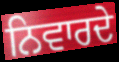
ਨਿਵਾਰਦੇ